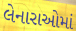
લેનારાઓમાં